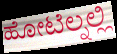
ಹೋಟೆಲ್ನಲ್ಲಿ